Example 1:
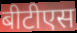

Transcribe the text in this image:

बीटीएस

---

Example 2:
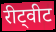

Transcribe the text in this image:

रीट्वीट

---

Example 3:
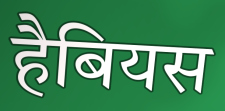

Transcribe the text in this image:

हैबियस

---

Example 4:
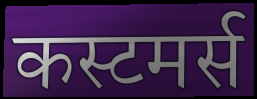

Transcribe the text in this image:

कस्टमर्स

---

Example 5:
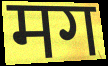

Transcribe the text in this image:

मग